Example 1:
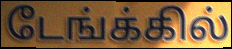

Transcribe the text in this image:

டேங்க்கில்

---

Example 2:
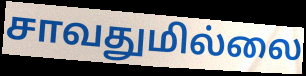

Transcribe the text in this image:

சாவதுமில்லை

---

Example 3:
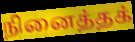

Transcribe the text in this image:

நினைத்தக்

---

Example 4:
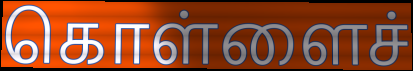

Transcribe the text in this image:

கொள்ளைச்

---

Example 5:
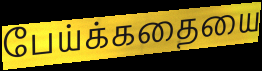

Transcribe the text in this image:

பேய்க்கதையை